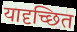
यादृच्छित